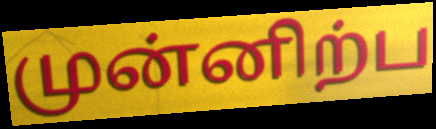
முன்னிற்ப